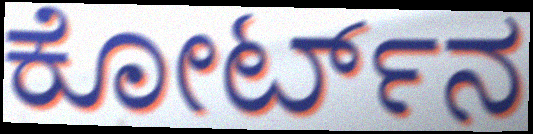
ಕೋರ್ಟ್‍ನ